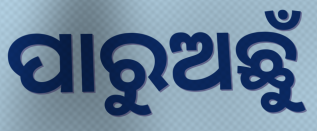
ପାରୁଅଛୁଁ